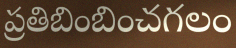
ప్రతిబింబించగలం